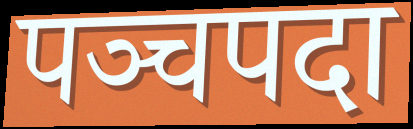
पञ्चपदा